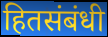
हितसंबंधी